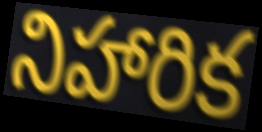
నిహారిక